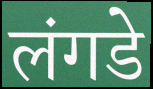
लंगडे